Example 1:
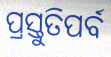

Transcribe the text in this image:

ପ୍ରସ୍ତୁତିପର୍ବ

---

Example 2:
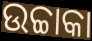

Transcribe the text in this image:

ଉଚ୍ଚାକା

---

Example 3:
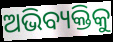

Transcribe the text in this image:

ଅଭିବ୍ୟକ୍ତିକୁ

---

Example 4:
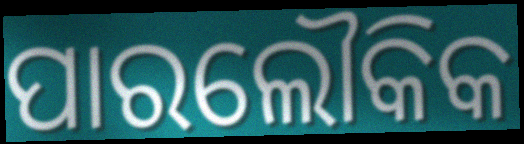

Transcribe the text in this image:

ପାରଲୌକିକ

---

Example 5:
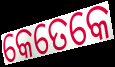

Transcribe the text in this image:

କେତେକେ